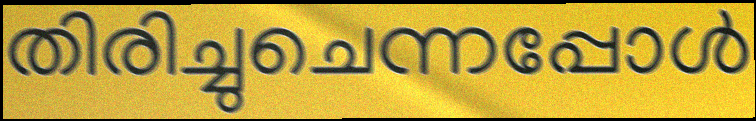
തിരിച്ചുചെന്നപ്പോൾ